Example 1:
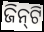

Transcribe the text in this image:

ଜିନ୍‌ଟି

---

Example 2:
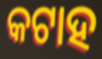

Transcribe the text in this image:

କଟାହ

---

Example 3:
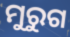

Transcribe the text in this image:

ମୁରୁଗ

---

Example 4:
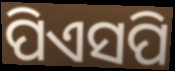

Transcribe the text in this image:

ପିଏସପି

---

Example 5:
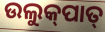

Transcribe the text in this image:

ଉଲୁକ୍‌ପାତ୍